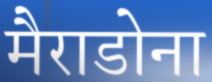
मैराडोना